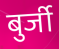
बुर्जी